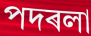
পদৰলা